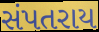
સંપતરાય